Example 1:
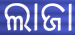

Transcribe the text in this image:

ଲାଜା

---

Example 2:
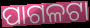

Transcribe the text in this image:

ପାଗଳଟା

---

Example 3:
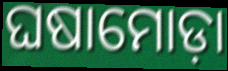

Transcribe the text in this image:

ଘଷାମୋଡ଼ା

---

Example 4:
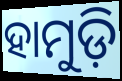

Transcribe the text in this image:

ହାମୁଡ଼ି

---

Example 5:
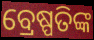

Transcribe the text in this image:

ବ୍ରେଷ୍ପତିଙ୍କ